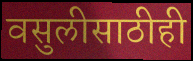
वसुलीसाठीही